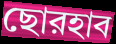
ছোরহাব